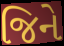
જિને